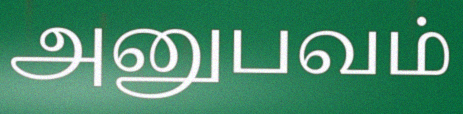
அனுபவம்